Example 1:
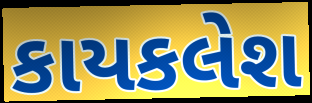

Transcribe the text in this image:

કાયકલેશ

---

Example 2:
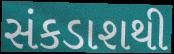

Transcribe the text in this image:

સંકડાશથી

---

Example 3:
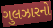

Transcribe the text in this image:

ગુલઝારનો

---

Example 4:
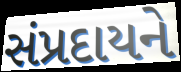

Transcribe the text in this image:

સંપ્રદાયને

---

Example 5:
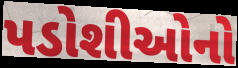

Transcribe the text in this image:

પડોશીઓનો